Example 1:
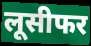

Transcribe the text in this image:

लूसीफर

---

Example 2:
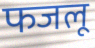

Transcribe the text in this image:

फजलू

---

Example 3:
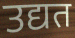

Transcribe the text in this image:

उद्यत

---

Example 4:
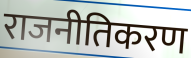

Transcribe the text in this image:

राजनीतिकरण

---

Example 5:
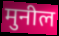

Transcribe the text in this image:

मुनील